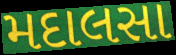
મદાલસા